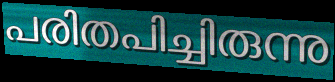
പരിതപിച്ചിരുന്നു